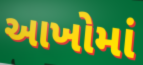
આખોમાં